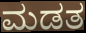
ಮಡತ